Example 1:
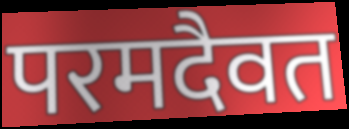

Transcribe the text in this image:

परमदैवत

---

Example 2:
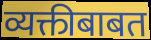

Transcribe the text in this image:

व्यक्तीबाबत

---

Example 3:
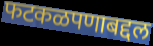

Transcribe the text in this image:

फटकळपणाबद्दल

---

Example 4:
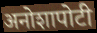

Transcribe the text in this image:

अनोशापोटी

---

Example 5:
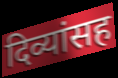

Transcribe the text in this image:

दिव्यांसह